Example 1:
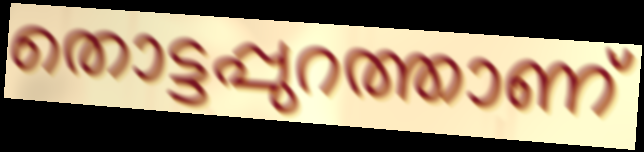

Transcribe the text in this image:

തൊട്ടപ്പുറത്താണ്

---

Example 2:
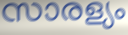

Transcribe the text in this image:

സാരള്യം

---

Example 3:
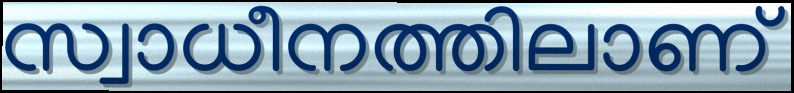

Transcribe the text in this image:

സ്വാധീനത്തിലാണ്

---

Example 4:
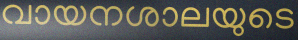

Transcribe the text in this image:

വായനശാലയുടെ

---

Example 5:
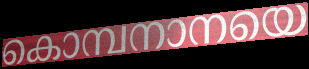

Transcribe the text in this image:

കൊമ്പനാനയെ